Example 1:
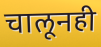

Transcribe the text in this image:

चालूनही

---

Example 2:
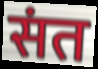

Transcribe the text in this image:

संत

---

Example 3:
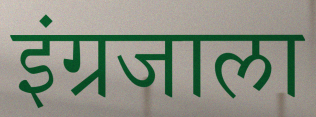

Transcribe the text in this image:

इंग्रजाला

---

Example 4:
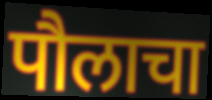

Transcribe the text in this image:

पौलाचा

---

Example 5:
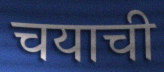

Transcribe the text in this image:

चयाची